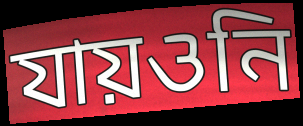
যায়ওনি